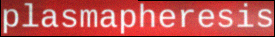
plasmapheresis